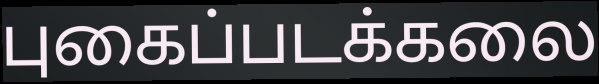
புகைப்படக்கலை